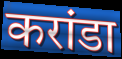
करांडा